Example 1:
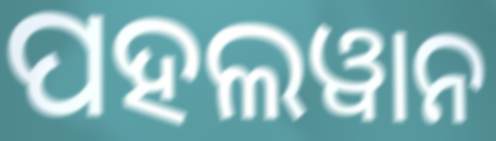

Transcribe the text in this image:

ପହଲୱାନ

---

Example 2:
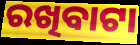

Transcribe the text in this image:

ରଖିବାଟା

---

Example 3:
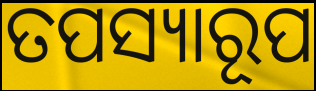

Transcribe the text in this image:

ତପସ୍ୟାରୂପ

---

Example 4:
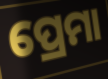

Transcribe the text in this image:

ପ୍ରେମା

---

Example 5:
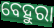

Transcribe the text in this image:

ବେହୁରା